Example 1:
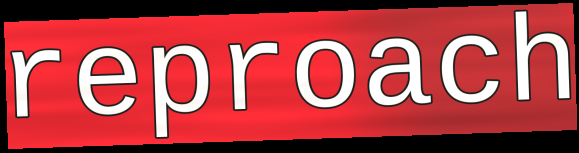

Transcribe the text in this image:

reproach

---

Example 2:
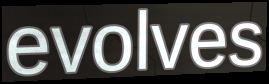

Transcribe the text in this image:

evolves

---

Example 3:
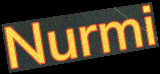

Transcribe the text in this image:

Nurmi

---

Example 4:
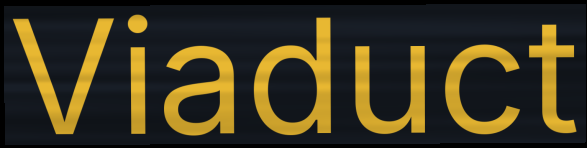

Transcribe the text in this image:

Viaduct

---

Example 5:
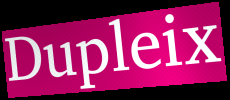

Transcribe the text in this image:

Dupleix